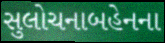
સુલોચનાબહેનના